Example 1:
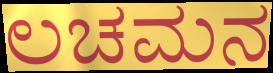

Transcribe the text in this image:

ಲಚಮನ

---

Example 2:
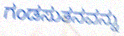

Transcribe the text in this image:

ಗಂಡಸುತನವನ್ನು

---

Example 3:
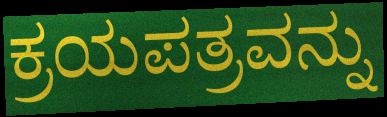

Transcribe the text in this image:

ಕ್ರಯಪತ್ರವನ್ನು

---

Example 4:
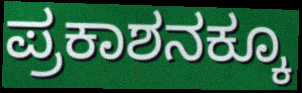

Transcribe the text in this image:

ಪ್ರಕಾಶನಕ್ಕೂ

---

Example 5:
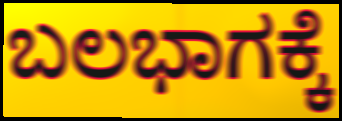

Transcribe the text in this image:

ಬಲಭಾಗಕ್ಕೆ